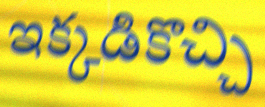
ఇక్కడికొచ్చి